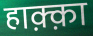
हाक़्क़ा